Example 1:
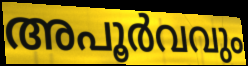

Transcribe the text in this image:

അപൂർവവും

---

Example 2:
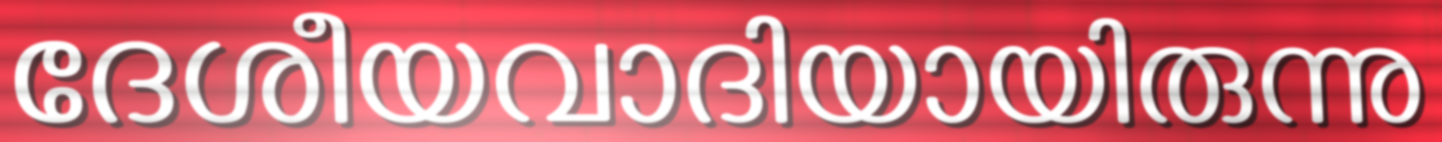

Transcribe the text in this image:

ദേശീയവാദിയായിരുന്നു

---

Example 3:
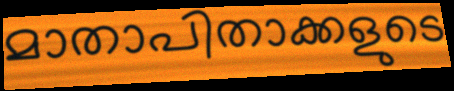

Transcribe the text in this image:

മാതാപിതാക്കളുടെ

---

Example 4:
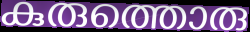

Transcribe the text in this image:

കുരുത്തൊരു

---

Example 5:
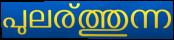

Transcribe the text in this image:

പുലര്ത്തുന്ന